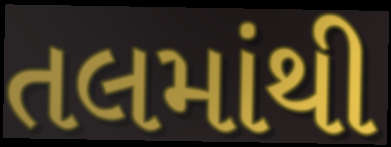
તલમાંથી